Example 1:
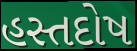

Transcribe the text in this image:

હસ્તદોષ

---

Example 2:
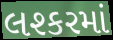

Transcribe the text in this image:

લશ્કરમાં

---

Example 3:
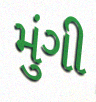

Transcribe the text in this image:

મુંગી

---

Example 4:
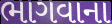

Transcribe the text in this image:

ભાગવાના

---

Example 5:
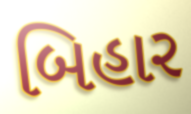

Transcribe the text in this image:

બિહાર